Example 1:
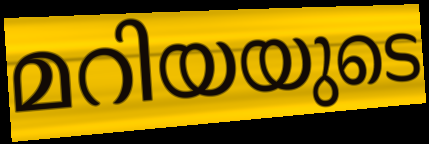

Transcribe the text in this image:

മറിയയുടെ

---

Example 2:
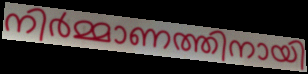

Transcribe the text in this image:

നിർമ്മാണത്തിനായി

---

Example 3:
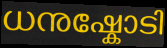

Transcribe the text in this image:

ധനുഷ്കോടി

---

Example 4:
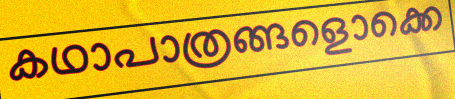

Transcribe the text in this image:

കഥാപാത്രങ്ങളൊക്കെ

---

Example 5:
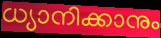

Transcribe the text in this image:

ധ്യാനിക്കാനും